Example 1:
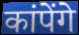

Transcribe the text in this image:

कांपेंगे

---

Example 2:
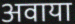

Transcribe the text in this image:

अवाया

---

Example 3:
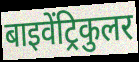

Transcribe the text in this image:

बाइवेंट्रिकुलर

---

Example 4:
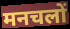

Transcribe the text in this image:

मनचलों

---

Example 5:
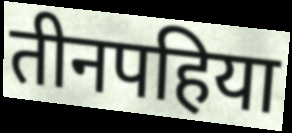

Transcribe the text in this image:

तीनपहिया